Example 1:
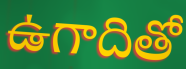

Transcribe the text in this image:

ఉగాదితో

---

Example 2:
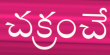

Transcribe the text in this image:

చక్రంచే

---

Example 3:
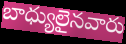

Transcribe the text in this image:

బాధ్యులైనవారు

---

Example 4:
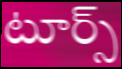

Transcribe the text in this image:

టూర్స్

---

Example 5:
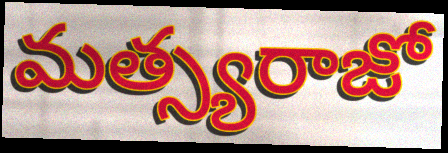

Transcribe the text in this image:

మత్స్యరాజో